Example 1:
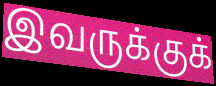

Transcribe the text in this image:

இவருக்குக்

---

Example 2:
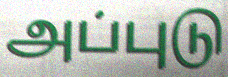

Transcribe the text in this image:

அப்புடு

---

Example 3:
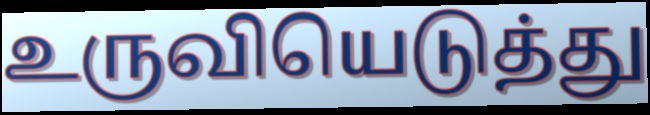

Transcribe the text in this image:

உருவியெடுத்து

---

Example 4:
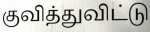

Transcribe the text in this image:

குவித்துவிட்டு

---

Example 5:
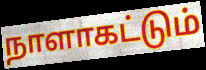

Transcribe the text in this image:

நாளாகட்டும்